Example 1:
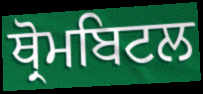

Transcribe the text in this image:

ਥ੍ਰੋਮਬਿਟਲ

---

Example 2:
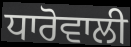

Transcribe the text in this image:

ਧਾਰੋਵਾਲੀ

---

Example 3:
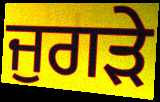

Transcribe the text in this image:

ਜੁਗੜੇ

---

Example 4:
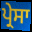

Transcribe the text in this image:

ਪ੍ਰੇਸਾ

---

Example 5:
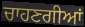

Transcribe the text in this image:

ਚਾਹਣਗੀਆਂ